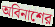
অবিনাশের